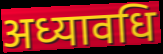
अध्यावधि